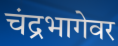
चंद्रभागेवर